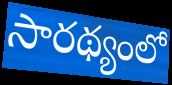
సారథ్యంలో